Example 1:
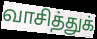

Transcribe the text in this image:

வாசித்துக்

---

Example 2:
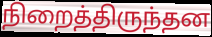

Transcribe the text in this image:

நிறைத்திருந்தன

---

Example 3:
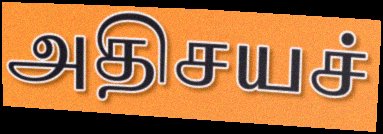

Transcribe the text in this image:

அதிசயச்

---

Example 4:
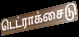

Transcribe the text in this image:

டெட்ராக்சைடு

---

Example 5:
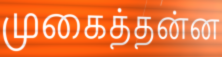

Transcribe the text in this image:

முகைத்தன்ன